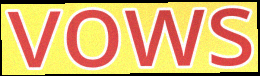
vows